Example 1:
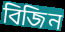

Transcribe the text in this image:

বিজিন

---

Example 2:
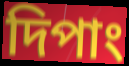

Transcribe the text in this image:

দিপাং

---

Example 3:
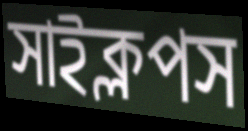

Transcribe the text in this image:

সাইক্লপস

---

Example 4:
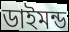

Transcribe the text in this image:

ডাইমন্ড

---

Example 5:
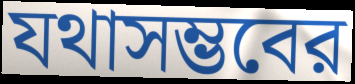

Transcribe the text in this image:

যথাসম্ভবের